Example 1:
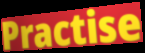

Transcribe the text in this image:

Practise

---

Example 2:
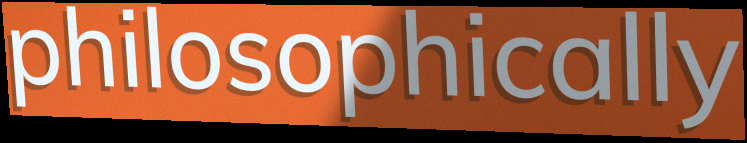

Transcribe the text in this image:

philosophically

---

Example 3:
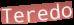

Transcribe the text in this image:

Teredo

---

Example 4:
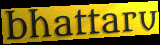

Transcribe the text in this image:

bhattaru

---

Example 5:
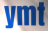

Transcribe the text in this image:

ymt